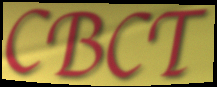
CBCT